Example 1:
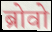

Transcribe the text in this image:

ब्रोवो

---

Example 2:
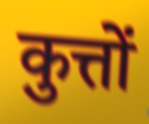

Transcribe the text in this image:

कुत्तों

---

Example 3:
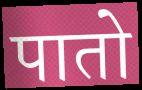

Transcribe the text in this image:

पातो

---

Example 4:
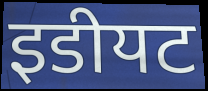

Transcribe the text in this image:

इडीयट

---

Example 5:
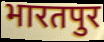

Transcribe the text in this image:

भारतपुर